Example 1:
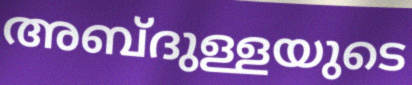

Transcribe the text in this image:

അബ്ദുള്ളയുടെ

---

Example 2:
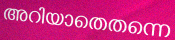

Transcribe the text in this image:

അറിയാതെതന്നെ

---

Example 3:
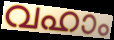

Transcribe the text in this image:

വഹാം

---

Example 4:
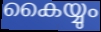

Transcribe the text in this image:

കൈയ്യും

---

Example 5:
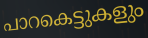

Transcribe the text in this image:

പാറകെട്ടുകളും